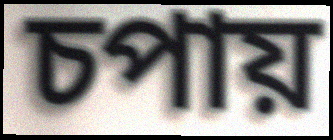
চপায়